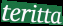
teritta